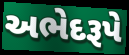
અભેદરૂપે